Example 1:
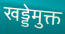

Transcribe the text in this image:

खड्डेमुक्त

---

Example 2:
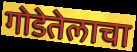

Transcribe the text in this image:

गोडेतेलाचा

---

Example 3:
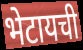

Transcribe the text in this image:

भेटायची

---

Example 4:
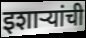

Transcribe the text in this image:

इशाऱ्यांची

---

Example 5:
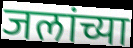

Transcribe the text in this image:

जलांच्या